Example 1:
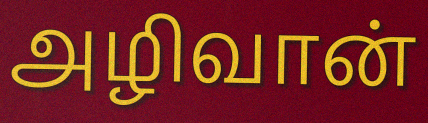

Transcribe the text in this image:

அழிவான்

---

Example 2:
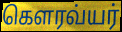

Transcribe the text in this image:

கௌரவ்யர்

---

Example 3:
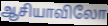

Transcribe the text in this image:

ஆசியாவிலோ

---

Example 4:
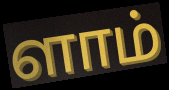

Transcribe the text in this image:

ளாம்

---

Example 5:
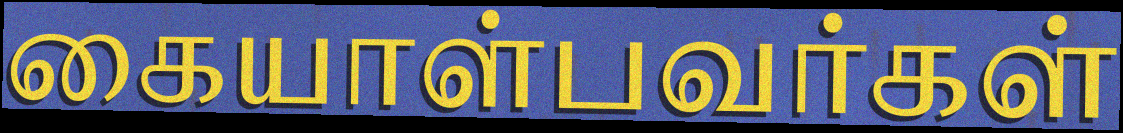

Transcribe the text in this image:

கையாள்பவர்கள்